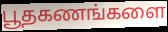
பூதகணங்களை